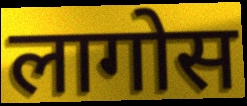
लागोस